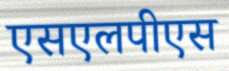
एसएलपीएस